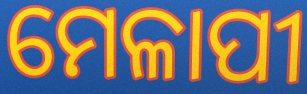
ମେଳାପୀ